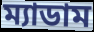
ম্যাডাম